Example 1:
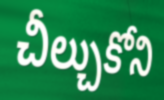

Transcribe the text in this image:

చీల్చుకోని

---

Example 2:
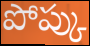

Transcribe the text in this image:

పోప్కు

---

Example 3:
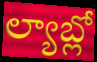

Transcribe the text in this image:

ల్యాబ్లో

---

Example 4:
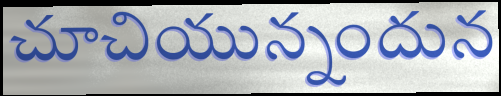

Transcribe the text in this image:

చూచియున్నందున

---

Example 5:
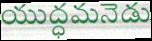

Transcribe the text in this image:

యుద్ధమనెడు